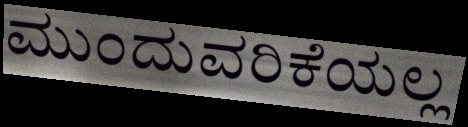
ಮುಂದುವರಿಕೆಯಲ್ಲ